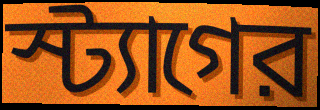
স্ট্যাগের